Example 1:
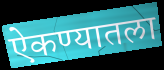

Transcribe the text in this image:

ऐकण्यातला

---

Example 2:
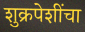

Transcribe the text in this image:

शुक्रपेशींचा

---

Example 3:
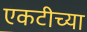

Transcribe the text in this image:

एकटीच्या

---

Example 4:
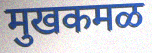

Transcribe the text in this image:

मुखकमळ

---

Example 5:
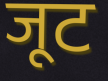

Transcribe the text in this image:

जूट